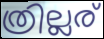
ത്രില്ലര്